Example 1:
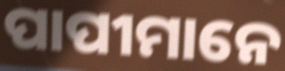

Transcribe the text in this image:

ପାପୀମାନେ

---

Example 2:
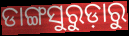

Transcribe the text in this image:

ଡାଙ୍ଗସୁରୁଡ଼ାରୁ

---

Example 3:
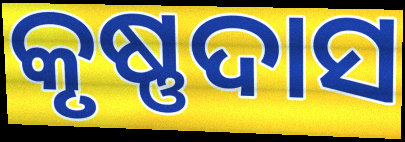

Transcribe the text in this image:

କୃଷ୍ଣଦାସ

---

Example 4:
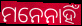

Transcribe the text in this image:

ମନେନାହିଁ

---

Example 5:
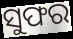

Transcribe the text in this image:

ସୁଫର